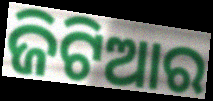
ଜିଟିଆର